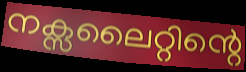
നക്സലൈറ്റിന്റെ